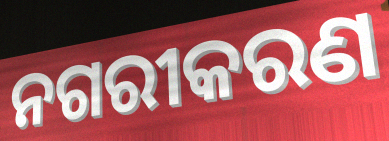
ନଗରୀକରଣ